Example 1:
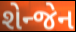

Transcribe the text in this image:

શેન્જેન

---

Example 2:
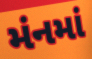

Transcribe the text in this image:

મંનમાં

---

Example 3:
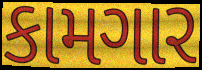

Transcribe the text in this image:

કામગાર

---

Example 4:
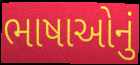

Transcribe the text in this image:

ભાષાઓનું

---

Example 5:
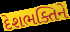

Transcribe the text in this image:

દેશભક્તિને